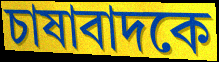
চাষাবাদকে